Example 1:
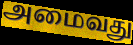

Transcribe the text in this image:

அமைவது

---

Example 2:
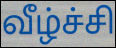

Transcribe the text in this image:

வீழ்ச்சி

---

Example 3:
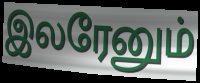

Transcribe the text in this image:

இலரேனும்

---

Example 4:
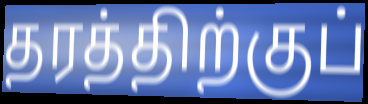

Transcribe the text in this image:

தரத்திற்குப்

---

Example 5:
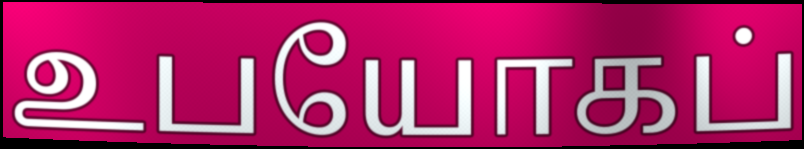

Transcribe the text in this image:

உபயோகப்